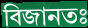
বিজানতঃ